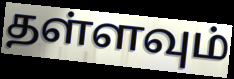
தள்ளவும்